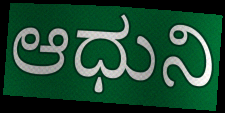
ಆಧುನಿ